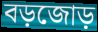
বড়জোড়